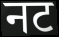
नट